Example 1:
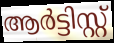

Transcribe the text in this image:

ആർട്ടിസ്റ്റ്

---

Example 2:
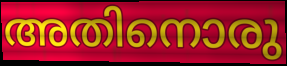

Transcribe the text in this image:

അതിനൊരു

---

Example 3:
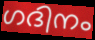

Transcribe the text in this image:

ഗദിനം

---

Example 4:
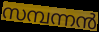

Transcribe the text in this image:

സമ്പന്നൻ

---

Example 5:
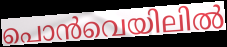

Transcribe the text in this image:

പൊൻവെയിലിൽ